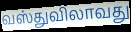
வஸ்துவிலாவது